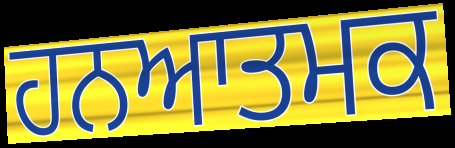
ਹਨਆਤਮਕ